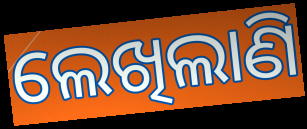
ଲେଖିଲାଣି